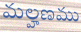
మల్హణము